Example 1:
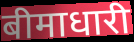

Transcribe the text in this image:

बीमाधारी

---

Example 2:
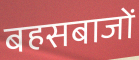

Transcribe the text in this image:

बहसबाजों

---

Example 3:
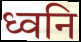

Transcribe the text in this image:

ध्‍वनि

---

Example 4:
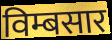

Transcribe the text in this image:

विम्बसार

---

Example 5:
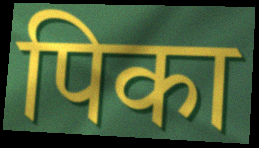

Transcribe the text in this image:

पिका